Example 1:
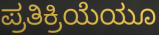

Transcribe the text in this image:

ಪ್ರತಿಕ್ರಿಯೆಯೂ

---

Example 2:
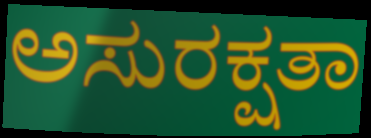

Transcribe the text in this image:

ಅಸುರಕ್ಷತಾ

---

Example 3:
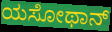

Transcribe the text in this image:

ಯಸೋಥಾನ್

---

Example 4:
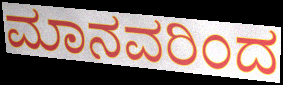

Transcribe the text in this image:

ಮಾನವರಿಂದ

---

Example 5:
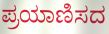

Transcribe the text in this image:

ಪ್ರಯಾಣಿಸದ